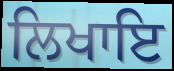
ਲਿਖਾਇ